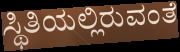
ಸ್ಥಿತಿಯಲ್ಲಿರುವಂತೆ